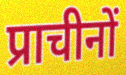
प्राचीनों